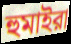
হুমাইরা